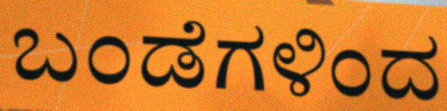
ಬಂಡೆಗಳಿಂದ